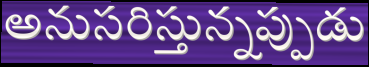
అనుసరిస్తున్నప్పుడు